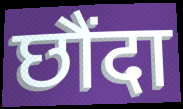
छौंदा